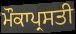
ਮੌਕਾਪ੍ਰਸਤੀ